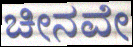
ಚೀನವೇ